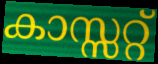
കാസ്സറ്റ്